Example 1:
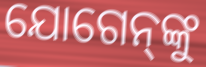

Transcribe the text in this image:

ଯୋଗେନ୍‌ଙ୍କୁ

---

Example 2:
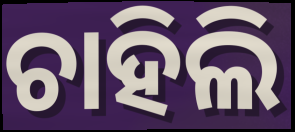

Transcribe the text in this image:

ଚାହିଲି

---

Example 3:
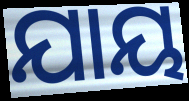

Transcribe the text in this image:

ଯାୟ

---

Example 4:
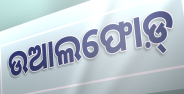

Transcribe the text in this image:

ଉଆଲଫୋଡ଼୍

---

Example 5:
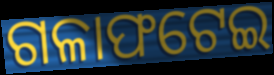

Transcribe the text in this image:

ଗଳାଫଟେଇ